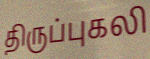
திருப்புகலி